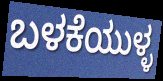
ಬಳಕೆಯುಳ್ಳ